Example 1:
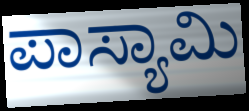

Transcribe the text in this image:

ಪಾಸ್ಯಾಮಿ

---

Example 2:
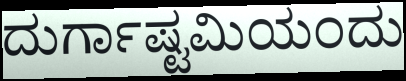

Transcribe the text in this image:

ದುರ್ಗಾಷ್ಟಮಿಯಂದು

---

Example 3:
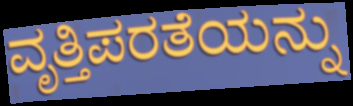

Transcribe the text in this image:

ವೃತ್ತಿಪರತೆಯನ್ನು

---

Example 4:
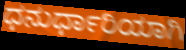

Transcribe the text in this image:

ಧನುರ್ಧಾರಿಯಾಗಿ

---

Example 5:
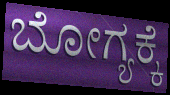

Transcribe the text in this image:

ಬೋಗ್ಯಕ್ಕೆ